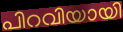
പിറവിയായി